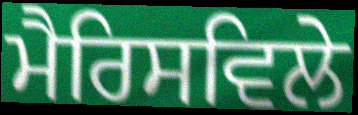
ਮੈਰਿਸਵਿਲੇ